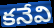
కనేవి